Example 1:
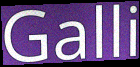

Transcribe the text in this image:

Galli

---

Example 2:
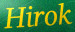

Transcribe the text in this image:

Hirok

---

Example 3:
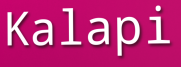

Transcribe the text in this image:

Kalapi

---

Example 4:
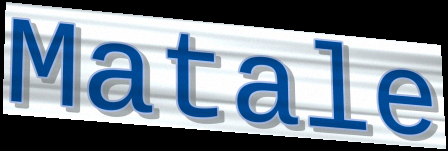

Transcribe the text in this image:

Matale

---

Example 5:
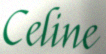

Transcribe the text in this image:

Celine